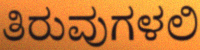
ತಿರುವುಗಳಲಿ